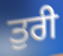
ਤੁਰੀ